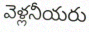
వెళ్లనీయరు